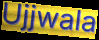
Ujjwala